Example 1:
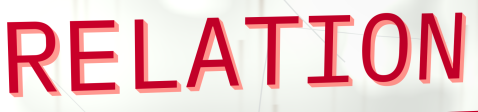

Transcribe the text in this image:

RELATION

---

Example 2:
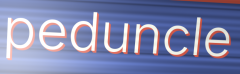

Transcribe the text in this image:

peduncle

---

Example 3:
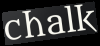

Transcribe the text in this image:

chalk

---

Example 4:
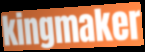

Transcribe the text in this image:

kingmaker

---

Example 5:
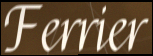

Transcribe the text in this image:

Ferrier